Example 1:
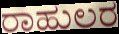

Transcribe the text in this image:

ರಾಹುಲರ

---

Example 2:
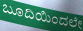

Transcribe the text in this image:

ಬೂದಿಯಿಂದಲೇ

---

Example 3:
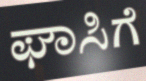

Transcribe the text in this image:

ಘಾಸಿಗೆ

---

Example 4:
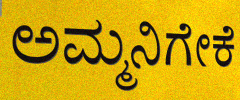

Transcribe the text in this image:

ಅಮ್ಮನಿಗೇಕೆ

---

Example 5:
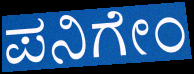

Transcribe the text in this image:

ಪನಿಗೇಂ